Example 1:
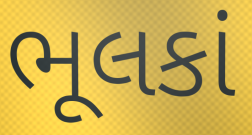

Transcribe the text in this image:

ભૂલકાં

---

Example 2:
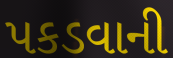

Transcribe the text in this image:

પકડવાની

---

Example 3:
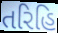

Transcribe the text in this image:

તરિહિ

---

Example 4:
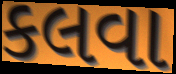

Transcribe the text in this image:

કલવા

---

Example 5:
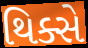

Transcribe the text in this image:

થિક્સે